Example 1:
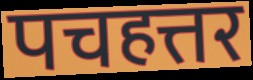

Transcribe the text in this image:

पचहत्तर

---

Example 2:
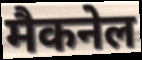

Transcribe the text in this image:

मैकनेल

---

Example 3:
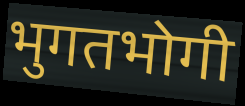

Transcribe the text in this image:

भुगतभोगी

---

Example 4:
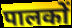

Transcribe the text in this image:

पालकों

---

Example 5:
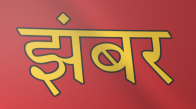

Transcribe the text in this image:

झंबर